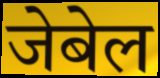
जेबेल